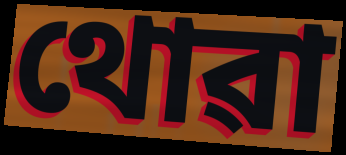
থোৱা